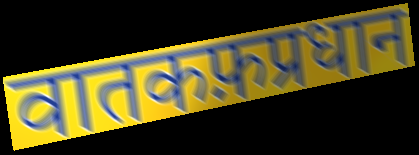
वातकफ़प्रधान